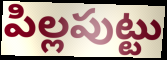
పిల్లపుట్టు